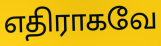
எதிராகவே